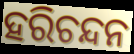
ହରିଚନ୍ଦନ